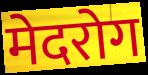
मेदरोग